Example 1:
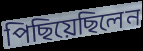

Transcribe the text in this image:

পিছিয়েছিলেন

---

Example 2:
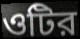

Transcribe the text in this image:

ওটির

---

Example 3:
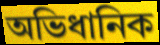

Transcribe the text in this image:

অভিধানিক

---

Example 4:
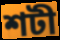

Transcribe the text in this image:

শটী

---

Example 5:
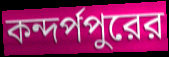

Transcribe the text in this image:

কন্দর্পপুরের